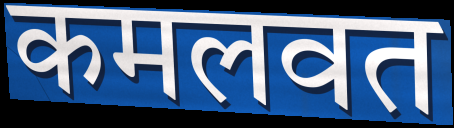
कमलवत